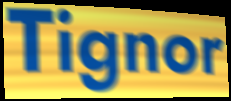
Tignor